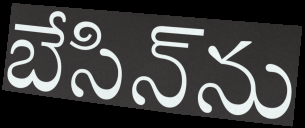
బేసిన్‌ను